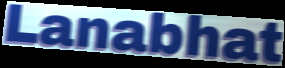
Lanabhat